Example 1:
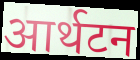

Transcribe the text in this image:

आर्थटन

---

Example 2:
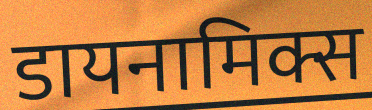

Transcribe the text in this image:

डायनामिक्स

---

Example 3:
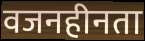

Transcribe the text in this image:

वजनहीनता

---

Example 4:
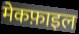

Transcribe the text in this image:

मेकफ़ाइल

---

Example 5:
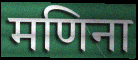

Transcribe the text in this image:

मणिना